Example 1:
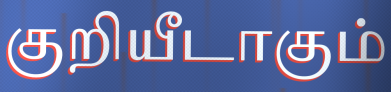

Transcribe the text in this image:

குறியீடாகும்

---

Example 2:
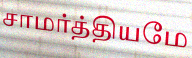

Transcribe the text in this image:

சாமர்த்தியமே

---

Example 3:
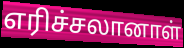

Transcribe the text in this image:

எரிச்சலானாள்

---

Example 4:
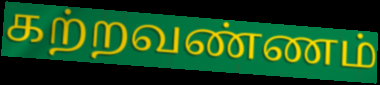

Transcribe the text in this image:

கற்றவண்ணம்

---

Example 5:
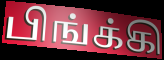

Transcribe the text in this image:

பிங்க்கி